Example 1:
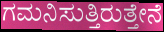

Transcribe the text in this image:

ಗಮನಿಸುತ್ತಿರುತ್ತೇನೆ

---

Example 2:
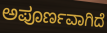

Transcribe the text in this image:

ಅಪೂರ್ಣವಾಗಿದೆ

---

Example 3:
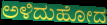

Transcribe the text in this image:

ಅಳಿದುಹೋದ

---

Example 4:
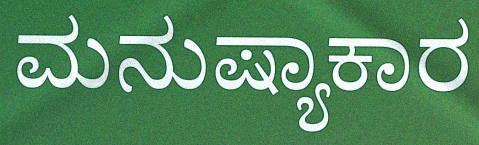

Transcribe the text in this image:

ಮನುಷ್ಯಾಕಾರ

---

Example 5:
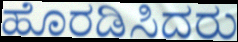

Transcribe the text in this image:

ಹೊರಡಿಸಿದರು